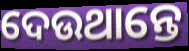
ଦେଉଥାନ୍ତେ